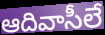
ఆదివాసీలే